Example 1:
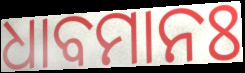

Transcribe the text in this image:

ଧାବମାନଃ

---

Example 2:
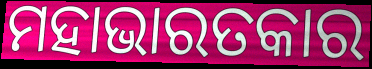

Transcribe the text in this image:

ମହାଭାରତକାର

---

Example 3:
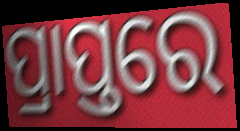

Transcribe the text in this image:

ପ୍ରାପ୍ତରେ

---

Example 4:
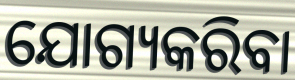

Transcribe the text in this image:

ଯୋଗ୍ୟକରିବା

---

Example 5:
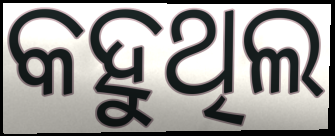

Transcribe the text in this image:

କହୁଥିଲ